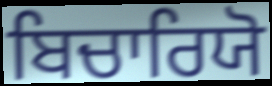
ਬਿਚਾਰਿਯੋ